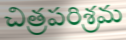
చిత్రపరిశ్రమ